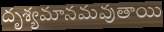
దృశ్యమానమవుతాయి